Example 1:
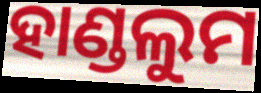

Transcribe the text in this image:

ହାଣ୍ଡଲୁମ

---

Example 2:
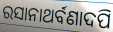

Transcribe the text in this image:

ରସାନାଥର୍ବଣାଦପି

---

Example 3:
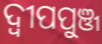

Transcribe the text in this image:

ଦ୍ଵୀପପୁଞ୍ଜ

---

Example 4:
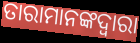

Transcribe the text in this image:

ତାରାମାନଙ୍କଦ୍ୱାରା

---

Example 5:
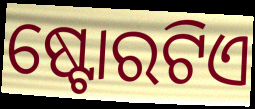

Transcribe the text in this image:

ଷ୍ଟୋରଟିଏ